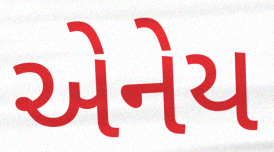
એનેય